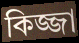
কিজ্জা